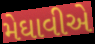
મેઘાવીએ